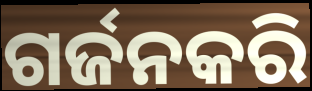
ଗର୍ଜନକରି